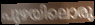
പുഴയിലൊരു